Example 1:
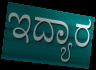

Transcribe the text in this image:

ಇದ್ಯಾರ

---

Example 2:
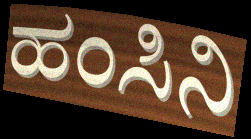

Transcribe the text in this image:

ಹಂಸಿನಿ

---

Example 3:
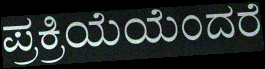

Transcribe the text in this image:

ಪ್ರಕ್ರಿಯೆಯೆಂದರೆ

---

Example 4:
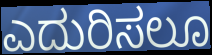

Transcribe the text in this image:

ಎದುರಿಸಲೂ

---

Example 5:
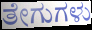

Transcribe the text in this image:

ತೇಗುಗಳು